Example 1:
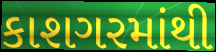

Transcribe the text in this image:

કાશગરમાંથી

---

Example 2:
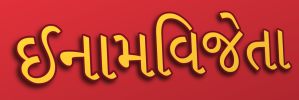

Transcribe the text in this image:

ઈનામવિજેતા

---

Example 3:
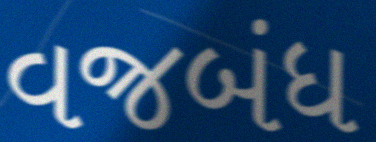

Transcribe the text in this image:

વજ્રબંધ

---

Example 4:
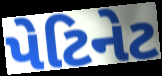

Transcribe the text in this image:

પેટિનેટ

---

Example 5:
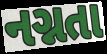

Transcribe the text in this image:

નગ્નતા